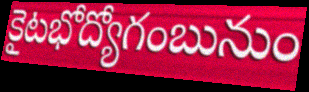
కైటభోద్యోగంబునుం